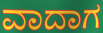
ವಾದಾಗ